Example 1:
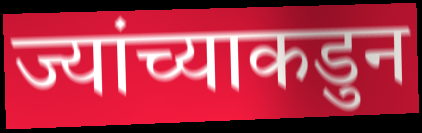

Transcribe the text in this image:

ज्यांच्याकडुन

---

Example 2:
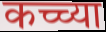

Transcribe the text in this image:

कच्च्या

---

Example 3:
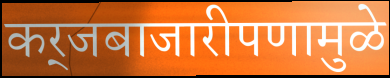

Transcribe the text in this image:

कर्जबाजारीपणामुळे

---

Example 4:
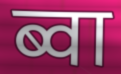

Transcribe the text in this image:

ब्वा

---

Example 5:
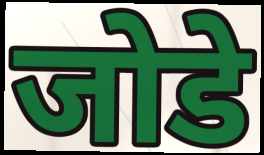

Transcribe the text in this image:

जोडे